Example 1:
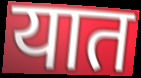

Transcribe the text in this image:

यात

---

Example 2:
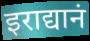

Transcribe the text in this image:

इराद्यानं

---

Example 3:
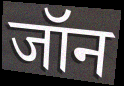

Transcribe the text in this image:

जॉन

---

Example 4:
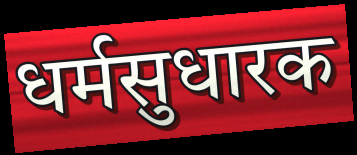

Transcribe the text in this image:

धर्मसुधारक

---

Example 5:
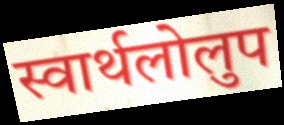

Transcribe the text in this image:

स्वार्थलोलुप